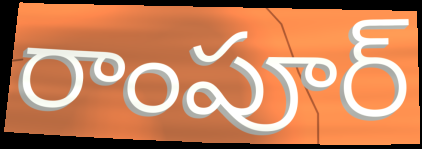
రాంపూర్